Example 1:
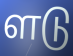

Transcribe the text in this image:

ளடு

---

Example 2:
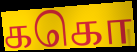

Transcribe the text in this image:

ககொ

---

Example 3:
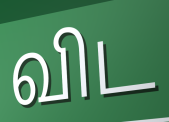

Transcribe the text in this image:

விட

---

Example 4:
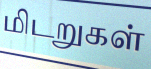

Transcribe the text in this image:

மிடறுகள்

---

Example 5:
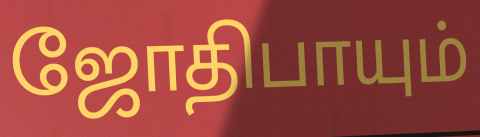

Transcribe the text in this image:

ஜோதிபாயும்